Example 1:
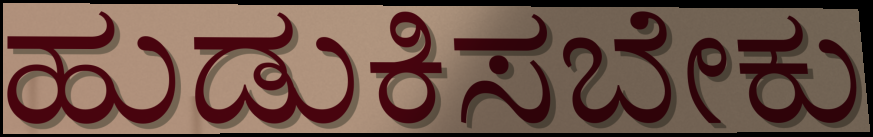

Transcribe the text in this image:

ಹುಡುಕಿಸಬೇಕು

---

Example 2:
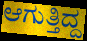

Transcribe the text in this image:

ಆಗುತ್ತಿದ್ದ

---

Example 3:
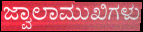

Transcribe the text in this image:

ಜ್ವಾಲಾಮುಖಿಗಳು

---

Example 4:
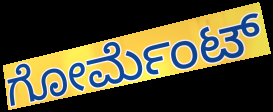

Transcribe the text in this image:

ಗೋರ್ಮೆಂಟ್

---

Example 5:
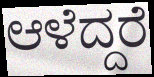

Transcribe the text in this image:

ಆಳೆದ್ದರೆ